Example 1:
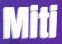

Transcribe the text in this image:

Miti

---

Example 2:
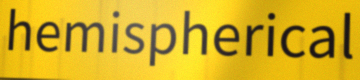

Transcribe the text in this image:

hemispherical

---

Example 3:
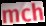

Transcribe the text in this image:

mch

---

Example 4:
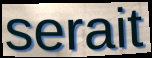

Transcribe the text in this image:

serait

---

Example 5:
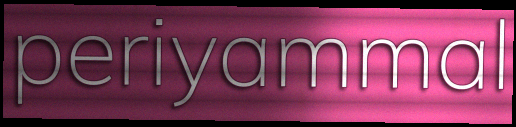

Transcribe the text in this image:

periyammal